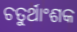
ଚତୁର୍ଥାଂଶକ